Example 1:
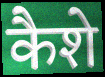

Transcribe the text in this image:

कैशे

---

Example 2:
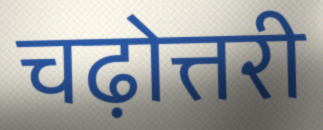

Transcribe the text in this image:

चढ़ोत्तरी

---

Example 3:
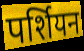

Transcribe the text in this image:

पर्शियन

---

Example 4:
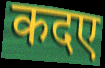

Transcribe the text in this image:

कदए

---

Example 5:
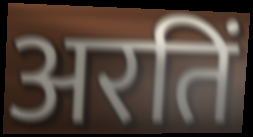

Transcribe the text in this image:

अरतिं